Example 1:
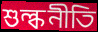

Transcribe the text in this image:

শুল্কনীতি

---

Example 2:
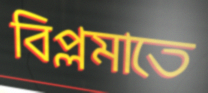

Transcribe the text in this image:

বিপ্লমাতে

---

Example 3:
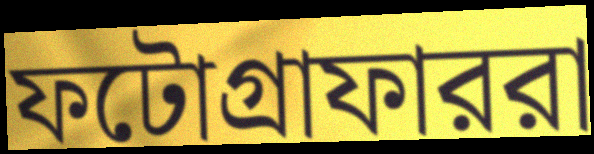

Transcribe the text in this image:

ফটোগ্রাফাররা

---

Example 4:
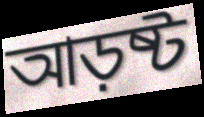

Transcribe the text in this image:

আড়ষ্ট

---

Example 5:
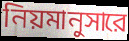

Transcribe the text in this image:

নিয়মানুসারে